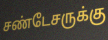
சண்டேசருக்கு